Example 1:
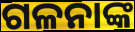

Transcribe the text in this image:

ଗଳନାଙ୍କ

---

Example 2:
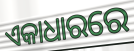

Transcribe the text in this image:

ଏକାଧାରରେ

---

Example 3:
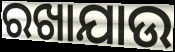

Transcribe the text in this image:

ରଖାଯାଉ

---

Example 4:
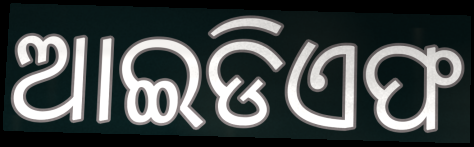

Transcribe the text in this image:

ଆଇଡିଏଫ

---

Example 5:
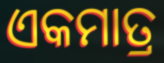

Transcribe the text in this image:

ଏକମାତ୍ର